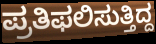
ಪ್ರತಿಫಲಿಸುತ್ತಿದ್ದ